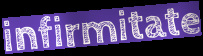
infirmitate